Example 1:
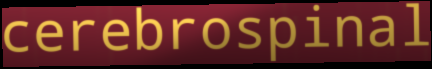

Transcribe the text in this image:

cerebrospinal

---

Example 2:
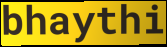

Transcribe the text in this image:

bhaythi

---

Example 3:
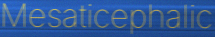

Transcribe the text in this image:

Mesaticephalic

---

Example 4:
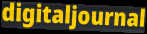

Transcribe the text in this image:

digitaljournal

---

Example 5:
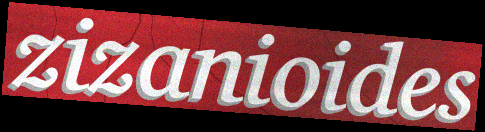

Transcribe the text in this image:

zizanioides